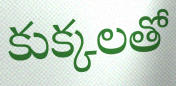
కుక్కలతో